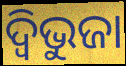
ଦ୍ଵିଭୁଜା